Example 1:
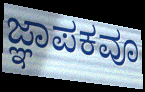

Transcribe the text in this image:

ಜ್ಞಾಪಕವೂ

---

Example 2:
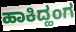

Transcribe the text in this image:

ಹಾಕಿದ್ಹಂಗ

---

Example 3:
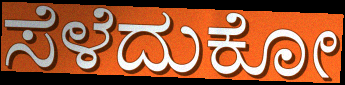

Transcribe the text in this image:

ಸೆಳೆದುಕೋ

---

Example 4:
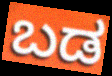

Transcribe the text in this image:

ಬಡ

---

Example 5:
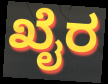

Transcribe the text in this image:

ಖೈರ